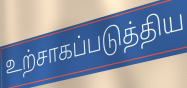
உற்சாகப்படுத்திய